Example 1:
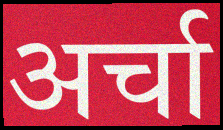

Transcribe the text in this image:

अर्चा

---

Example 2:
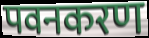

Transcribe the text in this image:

पवनकरण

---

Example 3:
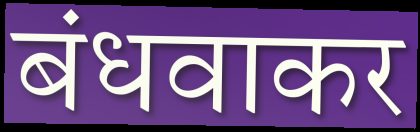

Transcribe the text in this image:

बंधवाकर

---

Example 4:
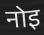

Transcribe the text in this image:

नोइ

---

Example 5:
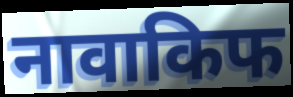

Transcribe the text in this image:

नावाकिफ